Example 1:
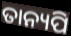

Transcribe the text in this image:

ତାନ୍ୟପି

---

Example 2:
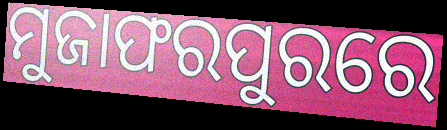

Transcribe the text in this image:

ମୁଜାଫରପୁରରେ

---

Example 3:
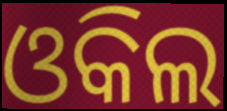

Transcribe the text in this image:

ଓକିଲ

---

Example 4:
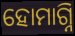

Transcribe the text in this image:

ହୋମାଗ୍ନି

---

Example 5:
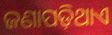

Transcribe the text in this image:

ଜଣାପଡ଼ିଥାଏ